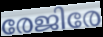
രേജിരേ